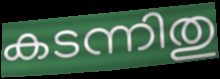
കടന്നിതു